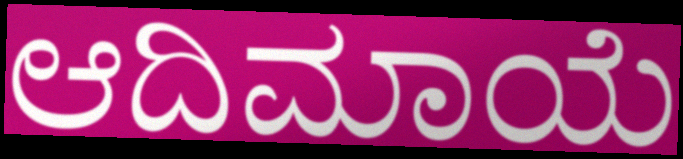
ಆದಿಮಾಯೆ